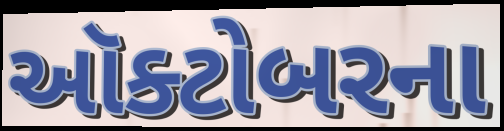
ઑક્ટોબરના